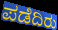
ಪಡೆದಿರು